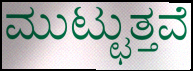
ಮುಟ್ಟುತ್ತವೆ